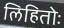
लिहितोः